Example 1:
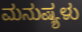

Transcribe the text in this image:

ಮನುಷ್ಯಳು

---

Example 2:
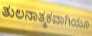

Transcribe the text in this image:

ತುಲನಾತ್ಮಕವಾಗಿಯೂ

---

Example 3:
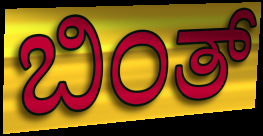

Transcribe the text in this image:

ಬಿಂತ್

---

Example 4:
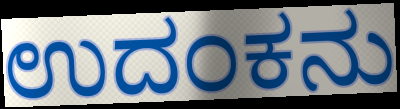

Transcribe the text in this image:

ಉದಂಕನು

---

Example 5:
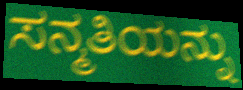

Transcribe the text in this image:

ಸನ್ಮತಿಯನ್ನು